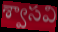
శ్వాసవి